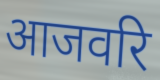
आजवरि